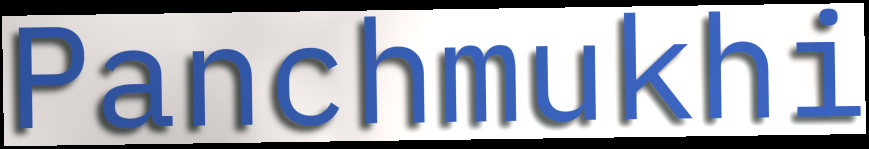
Panchmukhi